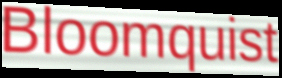
Bloomquist